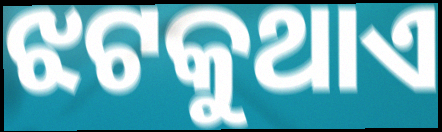
ଝଟକୁଥାଏ